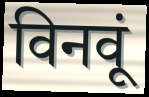
विनवूं